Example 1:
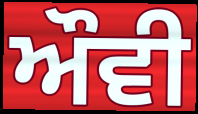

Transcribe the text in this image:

ਔਵੀ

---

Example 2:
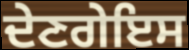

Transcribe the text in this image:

ਦੇਣਗੇਇਸ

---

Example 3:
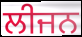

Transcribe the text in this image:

ਲੀਜਨ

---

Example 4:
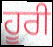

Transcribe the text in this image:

ਹੂਰੀ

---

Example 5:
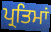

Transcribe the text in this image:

ਪ੍ਰਤਿਮਾਂ